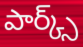
పార్క్స్